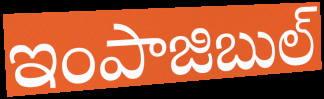
ఇంపాజిబుల్